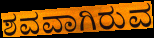
ಶವವಾಗಿರುವ